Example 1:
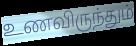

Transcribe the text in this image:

உணவிருந்தும்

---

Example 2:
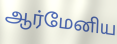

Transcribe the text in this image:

ஆர்மேனிய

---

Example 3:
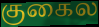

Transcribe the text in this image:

குகைல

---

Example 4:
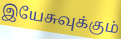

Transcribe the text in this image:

இயேசுவுக்கும்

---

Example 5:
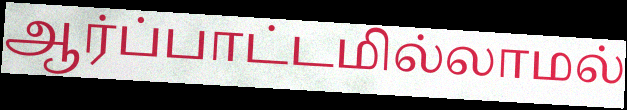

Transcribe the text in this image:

ஆர்ப்பாட்டமில்லாமல்